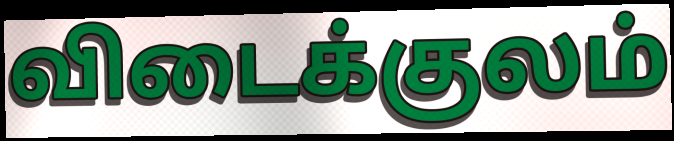
விடைக்குலம்